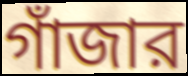
গাঁজার